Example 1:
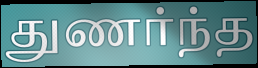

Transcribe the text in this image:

துணர்ந்த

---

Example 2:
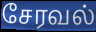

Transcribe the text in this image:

சேரவல்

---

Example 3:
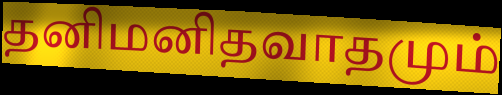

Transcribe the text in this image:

தனிமனிதவாதமும்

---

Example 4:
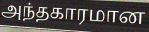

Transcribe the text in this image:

அந்தகாரமான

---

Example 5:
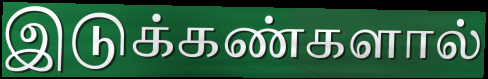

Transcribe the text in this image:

இடுக்கண்களால்